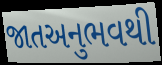
જાતઅનુભવથી